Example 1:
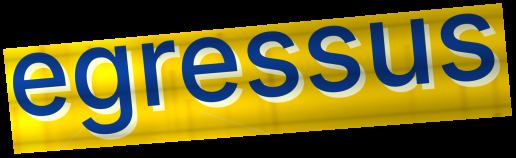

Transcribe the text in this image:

egressus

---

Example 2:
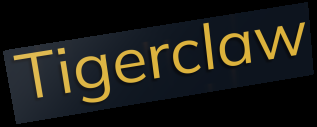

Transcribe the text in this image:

Tigerclaw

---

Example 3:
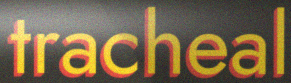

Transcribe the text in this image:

tracheal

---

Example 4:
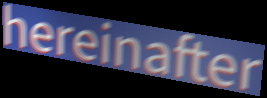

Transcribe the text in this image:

hereinafter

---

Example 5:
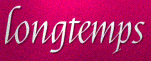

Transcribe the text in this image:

longtemps